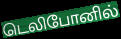
டெலிபோனில்